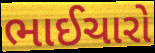
ભાઈચારો